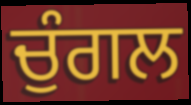
ਚੁੰਗਲ